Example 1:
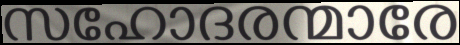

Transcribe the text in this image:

സഹോദരന്മാരേ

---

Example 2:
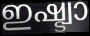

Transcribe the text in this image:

ഇഷ്ട്വാ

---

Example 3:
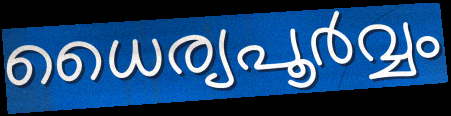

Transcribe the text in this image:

ധൈര്യപൂർവ്വം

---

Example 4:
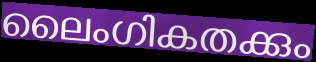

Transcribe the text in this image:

ലൈംഗികതക്കും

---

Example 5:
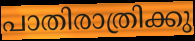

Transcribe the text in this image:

പാതിരാത്രിക്കു